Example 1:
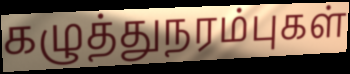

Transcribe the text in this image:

கழுத்துநரம்புகள்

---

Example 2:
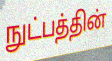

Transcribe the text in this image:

நுட்பத்தின்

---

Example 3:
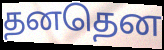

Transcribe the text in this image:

தனதென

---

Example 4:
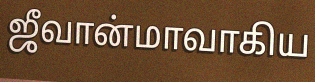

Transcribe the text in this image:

ஜீவான்மாவாகிய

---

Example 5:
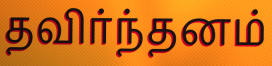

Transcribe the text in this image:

தவிர்ந்தனம்